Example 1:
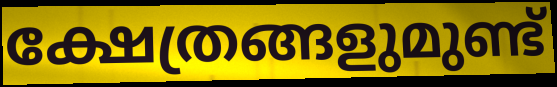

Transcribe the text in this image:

ക്ഷേത്രങ്ങളുമുണ്ട്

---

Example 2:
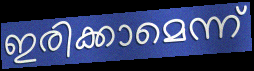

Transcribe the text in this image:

ഇരിക്കാമെന്ന്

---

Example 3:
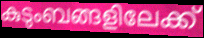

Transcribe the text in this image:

കുടുംബങ്ങളിലേക്ക്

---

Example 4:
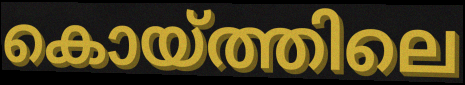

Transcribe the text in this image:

കൊയ്ത്തിലെ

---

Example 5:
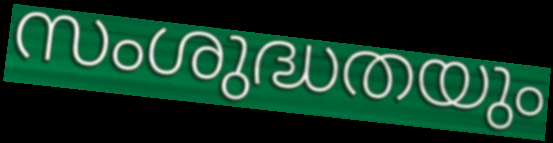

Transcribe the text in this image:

സംശുദ്ധതയും